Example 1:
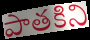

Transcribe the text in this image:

పాతకిని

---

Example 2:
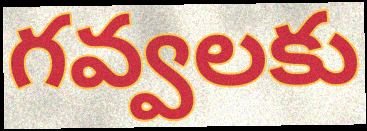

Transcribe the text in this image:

గవ్వలకు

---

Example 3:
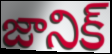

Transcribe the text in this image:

జానిక్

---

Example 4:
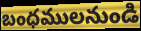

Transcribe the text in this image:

బంధములనుండి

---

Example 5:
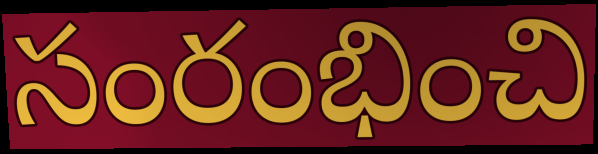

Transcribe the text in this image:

సంరంభించి